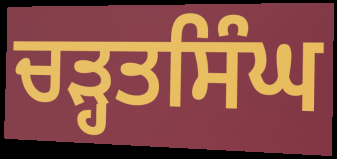
ਚੜ੍ਹਤਸਿੰਘ